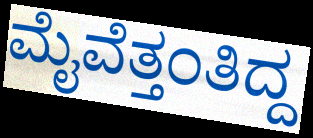
ಮೈವೆತ್ತಂತಿದ್ದ